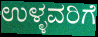
ಉಳ್ಳವರಿಗೆ